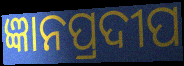
ଜ୍ଞାନପ୍ରଦୀପ